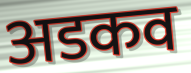
अडकव